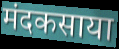
मंदकसाया